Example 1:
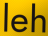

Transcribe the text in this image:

leh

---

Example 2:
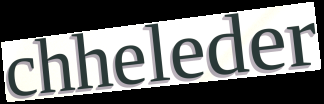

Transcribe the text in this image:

chheleder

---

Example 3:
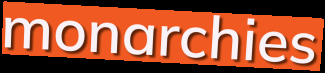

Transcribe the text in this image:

monarchies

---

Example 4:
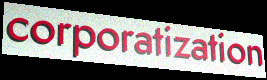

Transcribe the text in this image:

corporatization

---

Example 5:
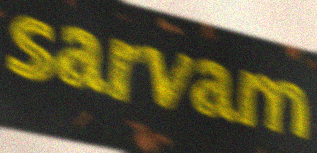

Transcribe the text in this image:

sarvam